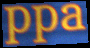
ppa